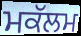
ਮਕੱਲਮ